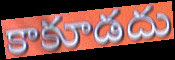
కాకూడదు